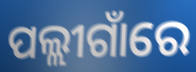
ପଲ୍ଲୀଗାଁରେ